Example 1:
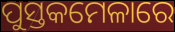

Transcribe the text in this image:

ପୁସ୍ତକମେଳାରେ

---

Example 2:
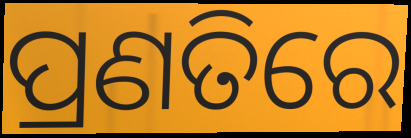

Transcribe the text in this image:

ପ୍ରଣତିରେ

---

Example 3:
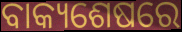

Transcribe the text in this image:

ବାକ୍ୟଶେଷରେ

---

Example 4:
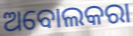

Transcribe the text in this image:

ଅବୋଲକରା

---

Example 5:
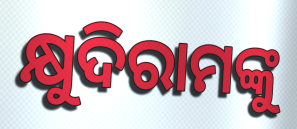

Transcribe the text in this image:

କ୍ଷୁଦିରାମଙ୍କୁ